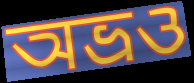
অভ্রও